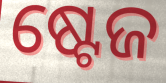
ଷ୍ଟେଜ